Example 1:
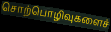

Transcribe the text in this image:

சொற்பொழிவுகளைச்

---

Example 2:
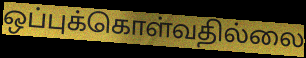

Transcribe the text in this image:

ஒப்புக்கொள்வதில்லை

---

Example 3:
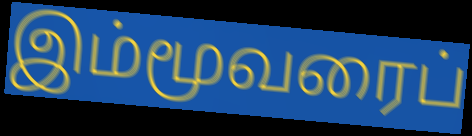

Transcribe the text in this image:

இம்மூவரைப்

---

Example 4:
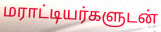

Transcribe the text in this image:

மராட்டியர்களுடன்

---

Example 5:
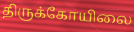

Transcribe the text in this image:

திருக்கோயிலை